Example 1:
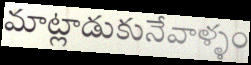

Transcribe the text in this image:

మాట్లాడుకునేవాళ్ళం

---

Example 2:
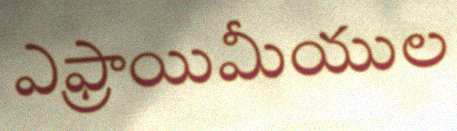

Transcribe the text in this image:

ఎఫ్రాయిమీయుల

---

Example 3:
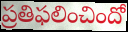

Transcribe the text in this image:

ప్రతిఫలించిందో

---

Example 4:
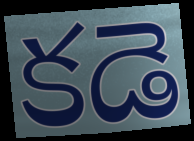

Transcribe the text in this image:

కడె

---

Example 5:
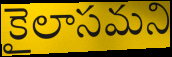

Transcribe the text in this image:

కైలాసమని